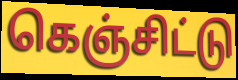
கெஞ்சிட்டு